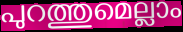
പുറത്തുമെല്ലാം